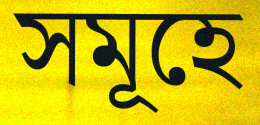
সমূহে